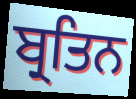
ਬ੍ਰਤਿਨ